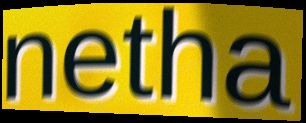
netha